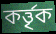
কর্ত্তৃক